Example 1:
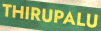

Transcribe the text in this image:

THIRUPALU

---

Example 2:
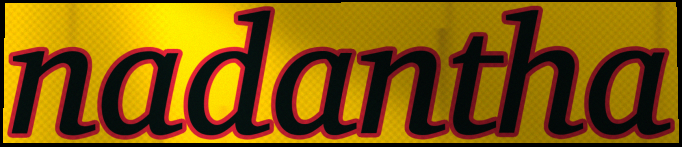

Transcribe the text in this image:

nadantha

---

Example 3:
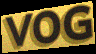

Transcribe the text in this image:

VOG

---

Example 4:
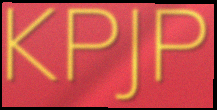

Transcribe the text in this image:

KPJP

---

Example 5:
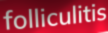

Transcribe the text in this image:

folliculitis